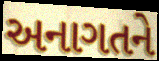
અનાગતને